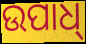
ଉପାଧ୍